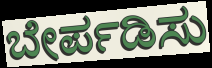
ಬೇರ್ಪಡಿಸು